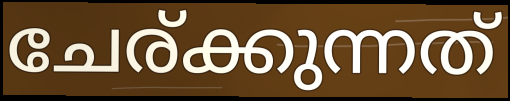
ചേര്ക്കുന്നത്